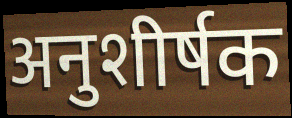
अनुशीर्षक